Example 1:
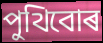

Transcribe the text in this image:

পুথিবোৰ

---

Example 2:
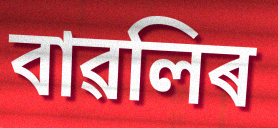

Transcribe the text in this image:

বাৱলিৰ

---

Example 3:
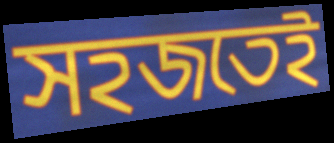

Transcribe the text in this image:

সহজতেই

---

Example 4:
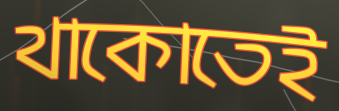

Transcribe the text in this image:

থাকোতেই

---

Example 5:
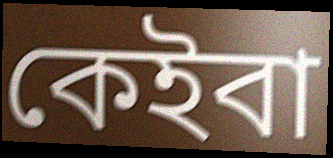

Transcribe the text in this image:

কেইবা